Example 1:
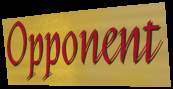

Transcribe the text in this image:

Opponent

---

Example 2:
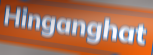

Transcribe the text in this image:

Hinganghat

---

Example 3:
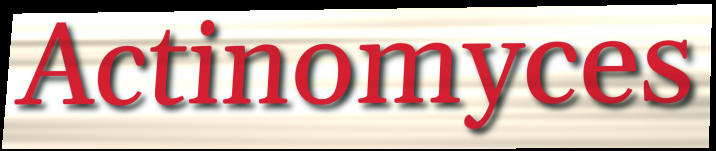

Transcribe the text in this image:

Actinomyces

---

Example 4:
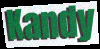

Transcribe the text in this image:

Kandy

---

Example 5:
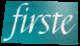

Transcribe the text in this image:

firste